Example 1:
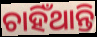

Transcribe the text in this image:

ଚାହିଁଥାନ୍ତି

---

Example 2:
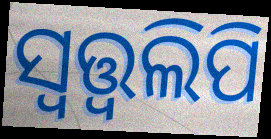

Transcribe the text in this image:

ସ୍ୱତ୍ତ୍ୱଲିପି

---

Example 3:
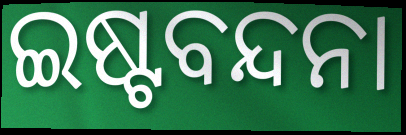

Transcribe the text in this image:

ଇଷ୍ଟବନ୍ଦନା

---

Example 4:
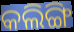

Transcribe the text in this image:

କଲିଙ୍ଗି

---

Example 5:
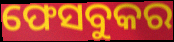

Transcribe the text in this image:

ଫେସବୁକର